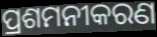
ପ୍ରଶମନୀକରଣ